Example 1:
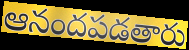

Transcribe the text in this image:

ఆనందపడతారు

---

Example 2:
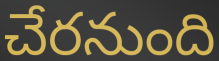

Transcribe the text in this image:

చేరనుంది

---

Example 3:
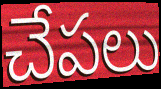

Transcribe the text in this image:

చేపలు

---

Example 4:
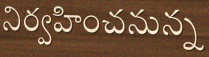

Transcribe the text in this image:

నిర్వహించనున్న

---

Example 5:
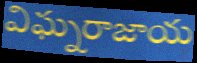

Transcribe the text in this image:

విఘ్నరాజాయ